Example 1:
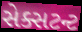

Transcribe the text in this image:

સેક્સટન્ટ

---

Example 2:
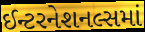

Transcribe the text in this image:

ઈન્ટરનેશનલ્સમાં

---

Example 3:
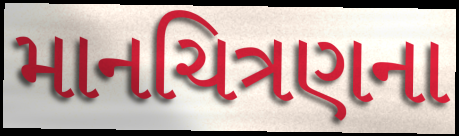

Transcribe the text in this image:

માનચિત્રણના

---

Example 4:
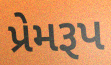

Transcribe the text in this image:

પ્રેમરૂપ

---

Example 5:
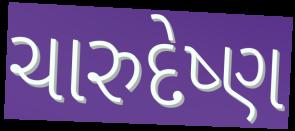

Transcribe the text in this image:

ચારુદેષ્ણ